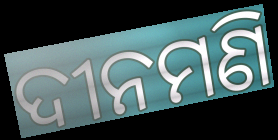
ଦୀନମଣି